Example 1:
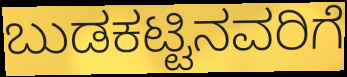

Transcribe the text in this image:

ಬುಡಕಟ್ಟಿನವರಿಗೆ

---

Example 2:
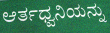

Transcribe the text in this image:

ಆರ್ತಧ್ವನಿಯನ್ನು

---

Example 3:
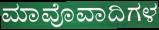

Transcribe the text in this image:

ಮಾವೊವಾದಿಗಳ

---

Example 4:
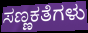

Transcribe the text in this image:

ಸಣ್ಣಕತೆಗಳು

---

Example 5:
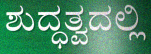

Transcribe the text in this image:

ಶುದ್ಧತ್ವದಲ್ಲಿ